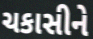
ચકાસીને